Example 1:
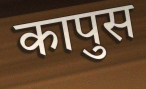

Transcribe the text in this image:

कापुस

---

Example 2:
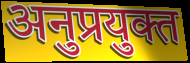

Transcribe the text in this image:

अनुप्रयुक्त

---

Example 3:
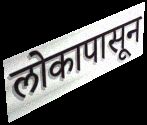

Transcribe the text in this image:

लोकापासून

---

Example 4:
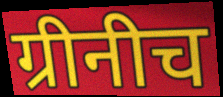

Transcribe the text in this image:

ग्रीनीच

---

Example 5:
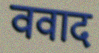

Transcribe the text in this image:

ववाद